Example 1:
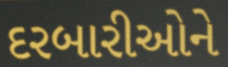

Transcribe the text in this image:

દરબારીઓને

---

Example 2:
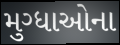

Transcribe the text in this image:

મુગ્ધાઓના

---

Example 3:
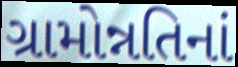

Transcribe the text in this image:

ગ્રામોન્નતિનાં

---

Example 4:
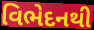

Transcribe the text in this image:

વિભેદનથી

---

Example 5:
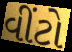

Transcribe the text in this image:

વીંટો